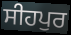
ਸੀਹਪੁਰ